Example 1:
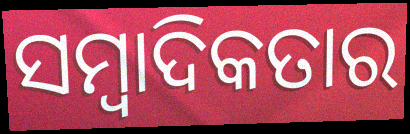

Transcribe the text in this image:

ସମ୍ୱାଦିକତାର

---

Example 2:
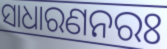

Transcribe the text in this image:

ସାଧାରଣନରଃ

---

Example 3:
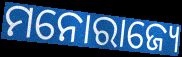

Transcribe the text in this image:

ମନୋରାଜ୍ୟେ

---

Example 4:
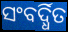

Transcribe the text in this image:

ସଂବର୍ଦ୍ଧିତ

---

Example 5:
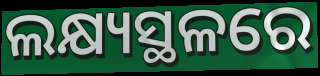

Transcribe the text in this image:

ଲକ୍ଷ୍ୟସ୍ଥଳରେ